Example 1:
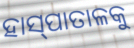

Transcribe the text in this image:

ହାସ୍‍ପାତାଳକୁ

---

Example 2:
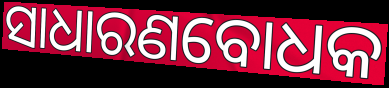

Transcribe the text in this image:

ସାଧାରଣବୋଧକ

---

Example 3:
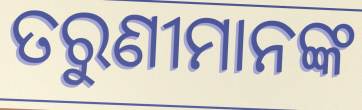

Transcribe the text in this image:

ତରୁଣୀମାନଙ୍କ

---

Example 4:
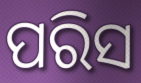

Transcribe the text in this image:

ପରିସ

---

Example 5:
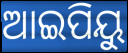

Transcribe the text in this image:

ଆଇପିୟୁ